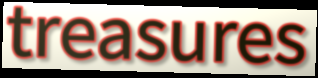
treasures